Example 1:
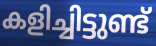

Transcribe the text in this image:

കളിച്ചിട്ടുണ്ട്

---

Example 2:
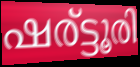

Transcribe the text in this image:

ഷര്ട്ടൂരി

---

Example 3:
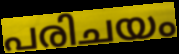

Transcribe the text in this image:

പരിചയം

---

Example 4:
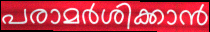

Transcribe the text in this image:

പരാമർശിക്കാൻ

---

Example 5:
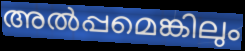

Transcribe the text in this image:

അൽപ്പമെങ്കിലും